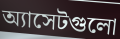
অ্যাসেটগুলো